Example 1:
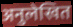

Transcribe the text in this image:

अनुलेखित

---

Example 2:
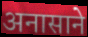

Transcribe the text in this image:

अनासाने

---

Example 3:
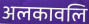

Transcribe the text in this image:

अलकावलि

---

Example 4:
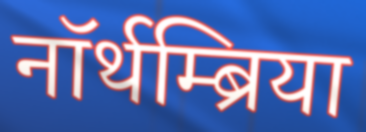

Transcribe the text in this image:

नॉर्थम्ब्रिया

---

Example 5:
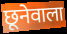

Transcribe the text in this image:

छूनेवाला